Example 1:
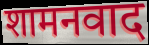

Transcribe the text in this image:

शामनवाद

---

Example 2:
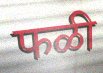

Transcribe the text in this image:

फळी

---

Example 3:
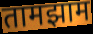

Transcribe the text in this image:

तामझाम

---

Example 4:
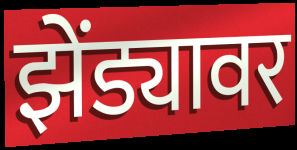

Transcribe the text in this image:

झेंड्यावर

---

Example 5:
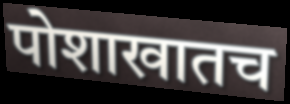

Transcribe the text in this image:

पोशाखातच